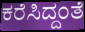
ಕರೆಸಿದ್ದಂತೆ